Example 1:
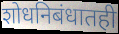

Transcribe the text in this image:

शोधनिबंधातही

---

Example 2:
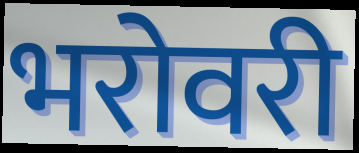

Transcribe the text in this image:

भरोवरी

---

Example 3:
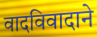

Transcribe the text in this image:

वादविवादाने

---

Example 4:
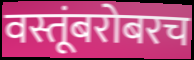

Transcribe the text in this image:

वस्तूंबरोबरच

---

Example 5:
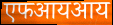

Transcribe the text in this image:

एफआयआय